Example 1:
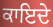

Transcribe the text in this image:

ਕਾਇਦੇ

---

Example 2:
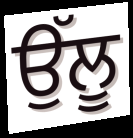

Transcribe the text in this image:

ਉੱਲੂ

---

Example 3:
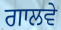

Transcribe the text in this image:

ਗਾਲਵੇ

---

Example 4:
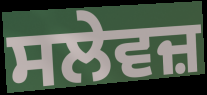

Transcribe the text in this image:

ਸਲੇਵਜ਼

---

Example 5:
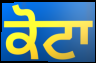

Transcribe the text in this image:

ਕੋਟਾ